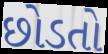
છોડતો